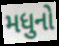
મધુનો